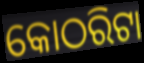
କୋଠରିଟା